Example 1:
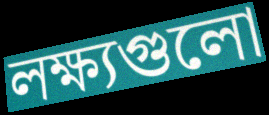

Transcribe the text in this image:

লক্ষ্যগুলো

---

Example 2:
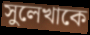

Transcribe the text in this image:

সুলেখাকে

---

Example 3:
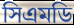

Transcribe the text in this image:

সিএমডি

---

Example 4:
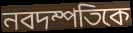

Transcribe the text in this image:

নবদম্পতিকে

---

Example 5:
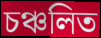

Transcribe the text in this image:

চঞ্চলিত